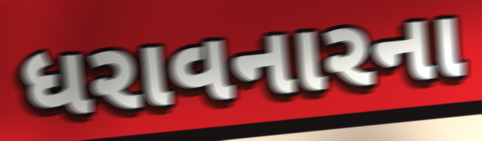
ધરાવનારના